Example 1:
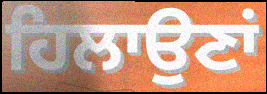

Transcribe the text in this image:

ਹਿਲਾਉਣਾਂ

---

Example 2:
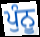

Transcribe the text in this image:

ਪੁੰਨੂ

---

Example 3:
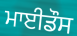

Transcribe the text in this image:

ਮਾਈਡੌਸ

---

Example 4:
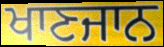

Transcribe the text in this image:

ਖਾਣਜਾਨ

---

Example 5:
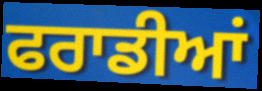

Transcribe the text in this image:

ਫਰਾਡੀਆਂ